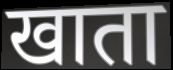
खाता